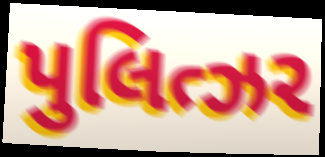
પુલિત્ઝર